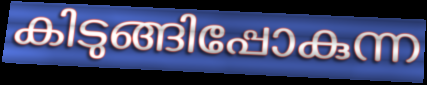
കിടുങ്ങിപ്പോകുന്ന